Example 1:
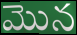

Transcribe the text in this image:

మొన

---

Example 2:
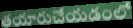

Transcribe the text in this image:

తయారుచేయడంలో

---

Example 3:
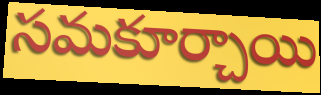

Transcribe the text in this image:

సమకూర్చాయి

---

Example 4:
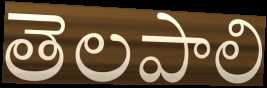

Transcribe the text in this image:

తెలపాలి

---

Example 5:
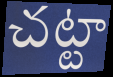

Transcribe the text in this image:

చట్టా